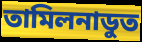
তামিলনাডুত